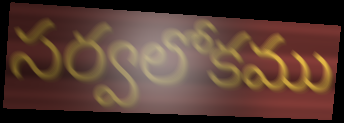
సర్వలోకము